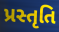
પ્રસ્તૃતિ